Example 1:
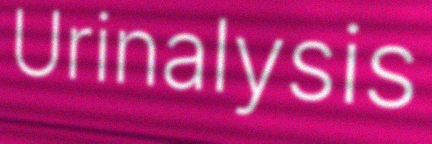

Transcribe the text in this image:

Urinalysis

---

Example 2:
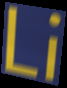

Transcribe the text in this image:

Li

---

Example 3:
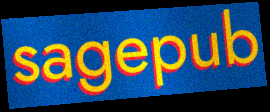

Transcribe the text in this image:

sagepub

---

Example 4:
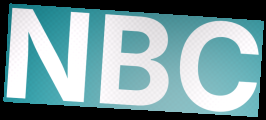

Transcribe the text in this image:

NBC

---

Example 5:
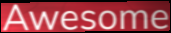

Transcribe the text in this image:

Awesome